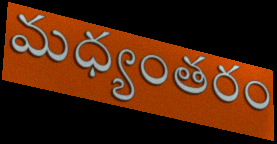
మధ్యంతరం